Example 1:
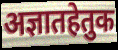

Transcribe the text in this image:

अज्ञातहेतुक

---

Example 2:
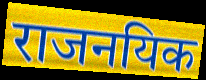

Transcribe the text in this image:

राजनयिक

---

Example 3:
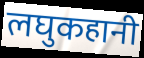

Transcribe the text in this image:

लघुकहानी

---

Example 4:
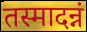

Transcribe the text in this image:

तस्मादन्नं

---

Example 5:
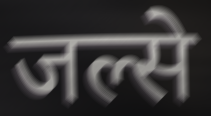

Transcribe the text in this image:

जल्से